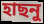
হাছনু